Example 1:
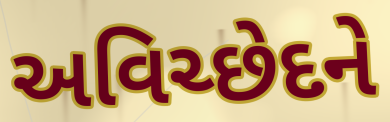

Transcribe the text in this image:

અવિચ્છેદને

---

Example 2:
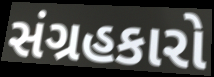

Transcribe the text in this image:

સંગ્રહકારો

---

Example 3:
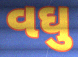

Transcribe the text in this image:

વઘુ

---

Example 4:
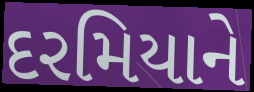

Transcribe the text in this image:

દરમિયાને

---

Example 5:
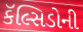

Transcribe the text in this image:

કૅલ્સિડોની